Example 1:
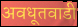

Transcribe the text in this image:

अवधूतवाडी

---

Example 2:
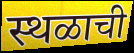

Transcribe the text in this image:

स्थळाची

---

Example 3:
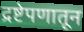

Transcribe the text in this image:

द्रष्टेपणातून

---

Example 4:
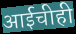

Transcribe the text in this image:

आईचीही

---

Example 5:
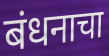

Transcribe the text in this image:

बंधनाचा